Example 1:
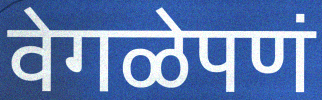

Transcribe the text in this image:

वेगळेपणं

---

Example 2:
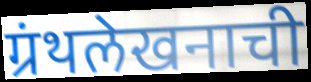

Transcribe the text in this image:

ग्रंथलेखनाची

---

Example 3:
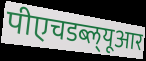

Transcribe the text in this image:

पीएचडब्ल्यूआर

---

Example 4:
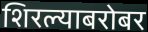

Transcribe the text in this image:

शिरल्याबरोबर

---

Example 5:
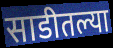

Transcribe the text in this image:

साडीतल्या